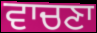
ਵਾਚਣਾ